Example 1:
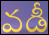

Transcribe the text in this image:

వడీ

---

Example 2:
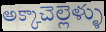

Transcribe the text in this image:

అక్కాచెల్లెళ్ళు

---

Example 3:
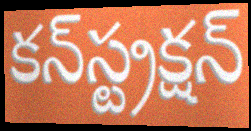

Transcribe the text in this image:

కన్‍స్ట్రక్షన్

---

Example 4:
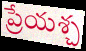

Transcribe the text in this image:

ప్రేయశ్చ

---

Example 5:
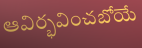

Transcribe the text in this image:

ఆవిర్భవించబోయే